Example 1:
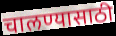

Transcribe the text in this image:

चालण्यासाठी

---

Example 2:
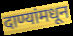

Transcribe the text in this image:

दाण्यांमधून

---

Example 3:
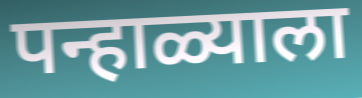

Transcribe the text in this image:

पन्हाळ्याला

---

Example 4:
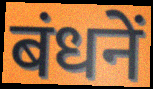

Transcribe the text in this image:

बंधनें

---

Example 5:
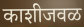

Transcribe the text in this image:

काशीजवळ